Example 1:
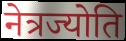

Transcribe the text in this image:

नेत्रज्योति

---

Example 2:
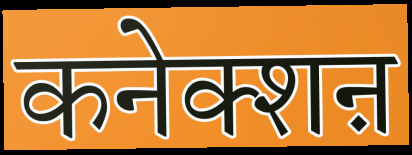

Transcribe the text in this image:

कनेक्शऩ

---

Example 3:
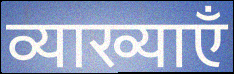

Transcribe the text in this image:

व्याख्याएँ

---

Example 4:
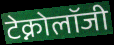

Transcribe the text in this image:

टेक्नोलॉजी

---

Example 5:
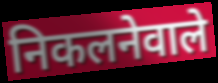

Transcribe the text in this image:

निकलनेवाले